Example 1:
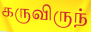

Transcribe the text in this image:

கருவிருந்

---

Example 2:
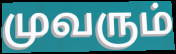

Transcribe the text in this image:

முவரும்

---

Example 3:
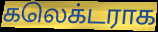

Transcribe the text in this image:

கலெக்டராக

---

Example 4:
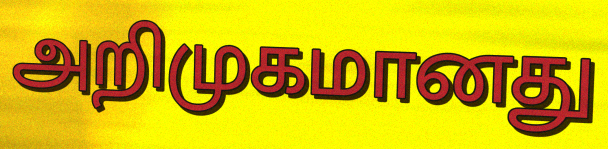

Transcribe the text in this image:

அறிமுகமானது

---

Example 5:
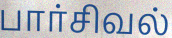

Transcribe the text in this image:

பார்சிவல்